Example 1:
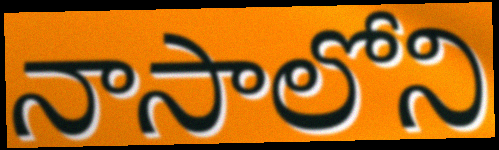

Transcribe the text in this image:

నాసాలోని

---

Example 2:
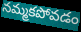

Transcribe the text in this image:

నమ్మకపోవడం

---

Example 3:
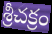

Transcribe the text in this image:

శ్రీచక్రం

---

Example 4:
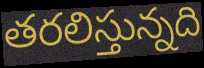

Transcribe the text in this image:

తరలిస్తున్నది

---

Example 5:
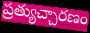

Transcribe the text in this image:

ప్రత్యుచ్చారణం